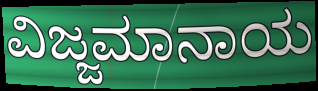
ವಿಜ್ಜಮಾನಾಯ